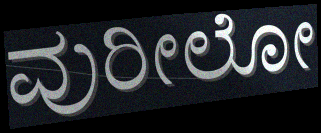
ವುರೀಲೋ